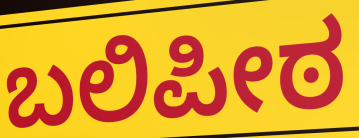
ಬಲಿಪೀಠ